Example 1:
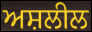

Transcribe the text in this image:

ਅਸ਼ਲੀਲ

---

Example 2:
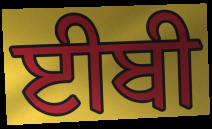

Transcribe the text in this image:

ਈਬੀ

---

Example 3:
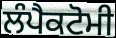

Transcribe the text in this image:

ਲੰਪੈਕਟੋਮੀ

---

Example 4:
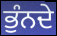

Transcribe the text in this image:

ਭੁੰਨਦੇ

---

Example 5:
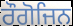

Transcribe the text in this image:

ਰੌਗੋਜਿਨ